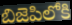
బిజెపిలోకి